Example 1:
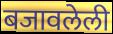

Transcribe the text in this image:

बजावलेली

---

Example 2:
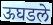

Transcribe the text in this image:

ऊघडले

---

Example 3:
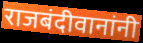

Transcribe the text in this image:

राजबंदीवानांनी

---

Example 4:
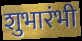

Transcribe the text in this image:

शुभारंभी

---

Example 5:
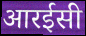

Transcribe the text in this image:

आरईसी